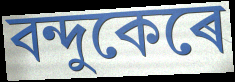
বন্দুকেৰে